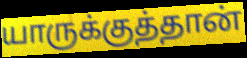
யாருக்குத்தான்